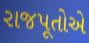
રાજપૂતોએ